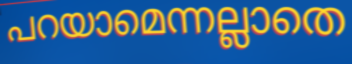
പറയാമെന്നല്ലാതെ